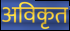
अविकृत